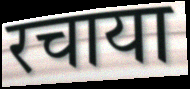
रचाया